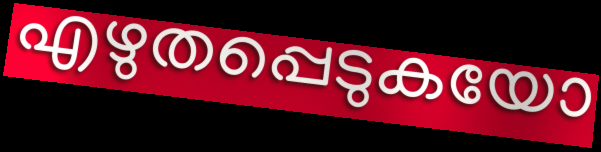
എഴുതപ്പെടുകയോ